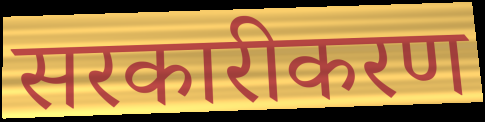
सरकारीकरण